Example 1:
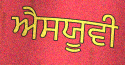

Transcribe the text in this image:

ਐਸਯੂਵੀ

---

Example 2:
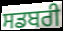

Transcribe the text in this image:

ਸਡਬਰੀ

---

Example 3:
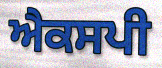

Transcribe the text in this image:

ਐਕਸਪੀ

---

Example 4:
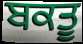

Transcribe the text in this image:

ਬਕਤੂ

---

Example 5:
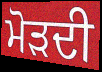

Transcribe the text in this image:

ਮੋੜਦੀ